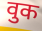
वुक